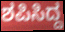
ಶಪಿಸಿದ್ದ